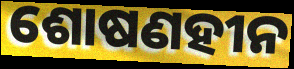
ଶୋଷଣହୀନ